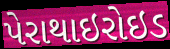
પેરાથાઇરોઇડ